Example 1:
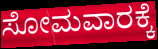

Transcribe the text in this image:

ಸೋಮವಾರಕ್ಕೆ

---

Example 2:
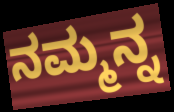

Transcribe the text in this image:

ನಮ್ಮನ್ನ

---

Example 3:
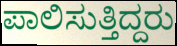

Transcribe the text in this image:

ಪಾಲಿಸುತ್ತಿದ್ದರು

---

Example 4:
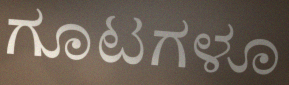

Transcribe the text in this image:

ಗೂಟಗಳೂ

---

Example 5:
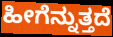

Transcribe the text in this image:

ಹೀಗೆನ್ನುತ್ತದೆ